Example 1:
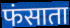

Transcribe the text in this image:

फंसाता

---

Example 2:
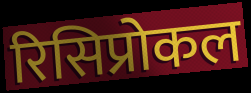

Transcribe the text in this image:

रिसिप्रोकल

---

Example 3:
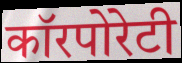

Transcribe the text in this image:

कॉरपोरेटी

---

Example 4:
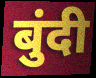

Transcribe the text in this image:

बुंदी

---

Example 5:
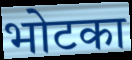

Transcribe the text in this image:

भोटका